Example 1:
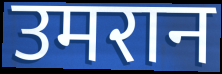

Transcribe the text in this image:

उमरान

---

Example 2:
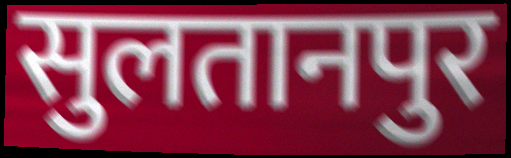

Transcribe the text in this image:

सुलतानपुर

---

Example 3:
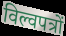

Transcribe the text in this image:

विल्वपत्रों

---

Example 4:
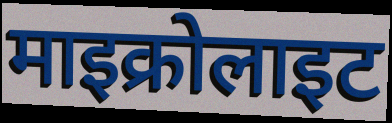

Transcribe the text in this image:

माइक्रोलाइट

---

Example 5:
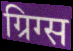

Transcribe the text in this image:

ग्रिग्स